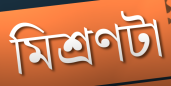
মিশ্রণটা